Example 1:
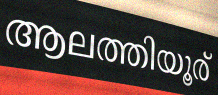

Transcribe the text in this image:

ആലത്തിയൂര്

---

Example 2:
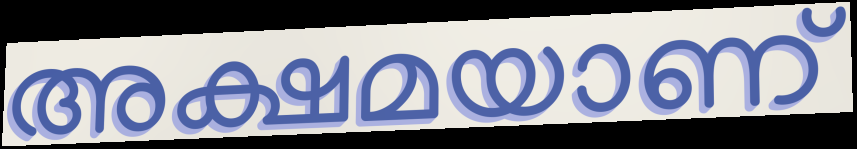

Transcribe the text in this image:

അക്ഷമയാണ്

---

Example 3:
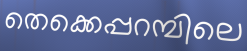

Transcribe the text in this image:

തെക്കെപ്പറമ്പിലെ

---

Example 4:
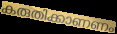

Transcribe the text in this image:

കരുതിക്കാണണം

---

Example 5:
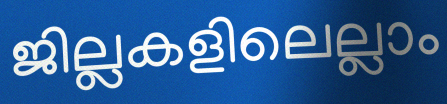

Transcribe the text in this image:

ജില്ലകളിലെല്ലാം